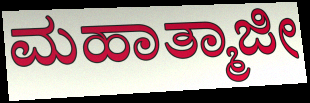
ಮಹಾತ್ಮಾಜೀ